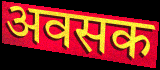
अवसक